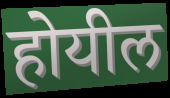
होयील